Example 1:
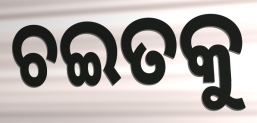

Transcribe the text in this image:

ଚଇତକୁ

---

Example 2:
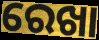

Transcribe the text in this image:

ରେଖା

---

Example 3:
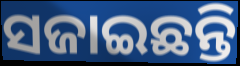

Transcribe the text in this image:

ସଜାଇଛନ୍ତି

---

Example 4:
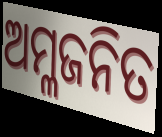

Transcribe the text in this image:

ଅମ୍ଳଜନିତ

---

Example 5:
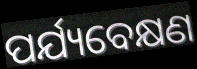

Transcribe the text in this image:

ପର୍ଯ୍ୟବେକ୍ଷଣ